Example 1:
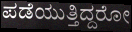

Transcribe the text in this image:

ಪಡೆಯುತ್ತಿದ್ದರೋ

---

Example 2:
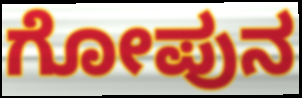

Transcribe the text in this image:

ಗೋಪುನ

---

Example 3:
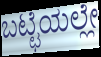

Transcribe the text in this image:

ಬಟ್ಟೆಯಲ್ಲೇ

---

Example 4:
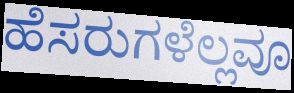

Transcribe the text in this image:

ಹೆಸರುಗಳೆಲ್ಲವೂ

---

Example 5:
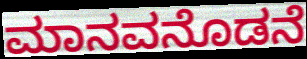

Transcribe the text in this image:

ಮಾನವನೊಡನೆ